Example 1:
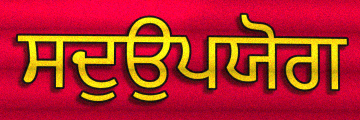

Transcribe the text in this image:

ਸਦੁਉਪਯੋਗ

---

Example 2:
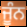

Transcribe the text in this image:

ਜੂੰਨ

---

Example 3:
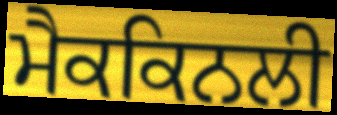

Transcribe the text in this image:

ਮੈਕਕਿਨਲੀ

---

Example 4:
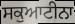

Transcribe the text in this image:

ਸਕੁਆਟੀਨਾ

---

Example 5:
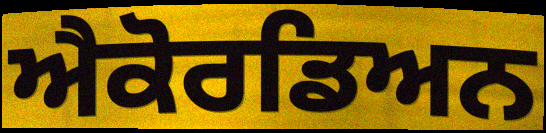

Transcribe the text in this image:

ਐਕੋਰਡਿਅਨ